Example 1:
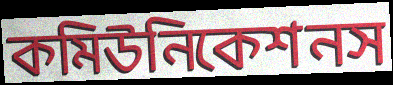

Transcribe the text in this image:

কমিউনিকেশনস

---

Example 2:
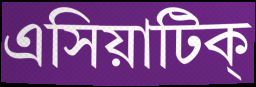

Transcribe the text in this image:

এসিয়াটিক্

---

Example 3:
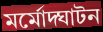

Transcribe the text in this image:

মর্মোদ্ঘাটন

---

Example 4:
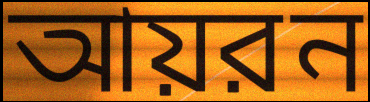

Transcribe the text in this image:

আয়রন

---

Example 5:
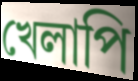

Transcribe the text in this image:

খেলাপি